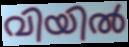
വിയിൽ